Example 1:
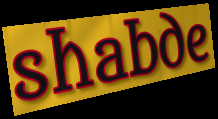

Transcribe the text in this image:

shabde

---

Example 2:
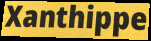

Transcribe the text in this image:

Xanthippe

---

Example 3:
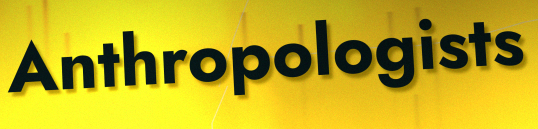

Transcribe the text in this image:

Anthropologists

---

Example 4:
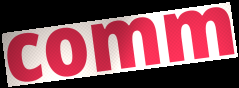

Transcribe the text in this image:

comm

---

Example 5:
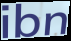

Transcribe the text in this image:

ibn